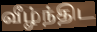
வீழ்ந்திட